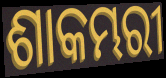
ଶାକମ୍ଭରୀ